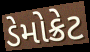
ડેમોક્રેટ